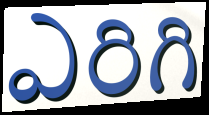
ఎరిగి